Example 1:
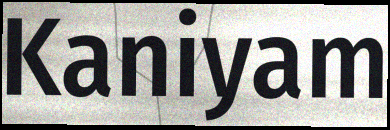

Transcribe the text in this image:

Kaniyam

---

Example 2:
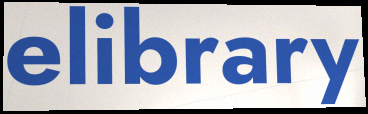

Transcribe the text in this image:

elibrary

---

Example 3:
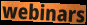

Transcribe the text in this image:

webinars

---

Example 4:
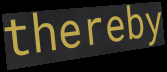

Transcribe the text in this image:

thereby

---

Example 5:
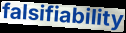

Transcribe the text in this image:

falsifiability